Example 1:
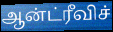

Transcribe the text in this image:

ஆன்ட்ரீவிச்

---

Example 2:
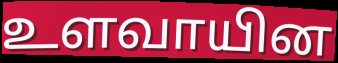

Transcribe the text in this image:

உளவாயின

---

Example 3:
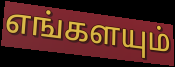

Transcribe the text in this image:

எங்களயும்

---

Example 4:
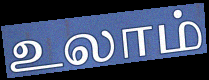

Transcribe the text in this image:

உலாம்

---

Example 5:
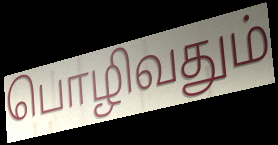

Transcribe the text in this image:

பொழிவதும்